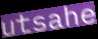
utsahe